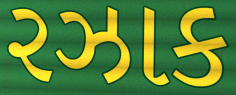
રઝાક